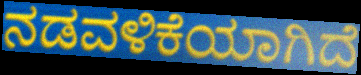
ನಡವಳಿಕೆಯಾಗಿದೆ